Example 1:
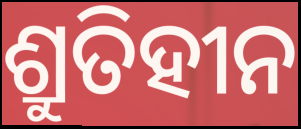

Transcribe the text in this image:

ଶ୍ରୁତିହୀନ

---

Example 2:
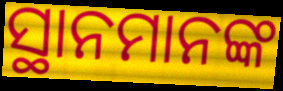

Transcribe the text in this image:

ସ୍ଥାନମାନଙ୍କ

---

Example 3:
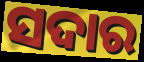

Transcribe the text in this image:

ସଦାର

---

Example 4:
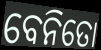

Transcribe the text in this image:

ବେନିତୋ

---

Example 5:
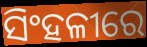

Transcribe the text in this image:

ସିଂହଳୀରେ